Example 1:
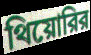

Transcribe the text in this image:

থিয়োরির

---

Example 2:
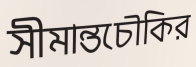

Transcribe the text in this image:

সীমান্তচৌকির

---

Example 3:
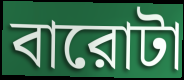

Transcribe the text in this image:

বারোটা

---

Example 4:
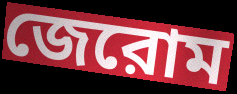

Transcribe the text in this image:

জেরোম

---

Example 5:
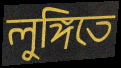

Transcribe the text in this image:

লুঙ্গিতে